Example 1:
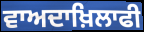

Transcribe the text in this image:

ਵਾਅਦਾਖ਼ਿਲਾਫੀ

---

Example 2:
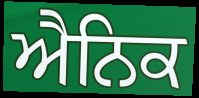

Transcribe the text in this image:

ਐਨਿਕ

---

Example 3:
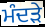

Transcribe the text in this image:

ਮੰਦੜੇ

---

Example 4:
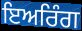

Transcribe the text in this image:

ਇਅਰਿੰਗ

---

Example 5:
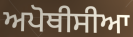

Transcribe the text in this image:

ਅਪੋਥੀਸੀਆ